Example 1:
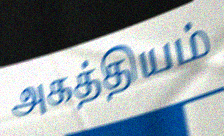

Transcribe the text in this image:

அகத்தியம்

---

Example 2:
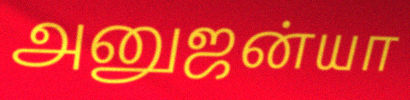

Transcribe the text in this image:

அனுஜன்யா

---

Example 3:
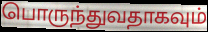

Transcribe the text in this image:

பொருந்துவதாகவும்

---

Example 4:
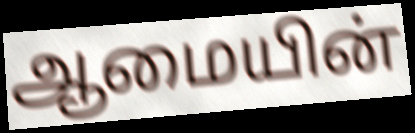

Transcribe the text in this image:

ஆமையின்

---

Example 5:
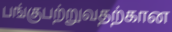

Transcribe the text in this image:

பங்குபற்றுவதற்கான